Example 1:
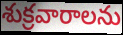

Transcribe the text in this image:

శుక్రవారాలను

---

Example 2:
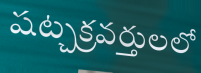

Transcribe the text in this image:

షట్చక్రవర్తులలో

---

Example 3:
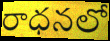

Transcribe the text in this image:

రాధనలో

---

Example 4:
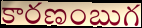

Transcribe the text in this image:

కారణంబుగ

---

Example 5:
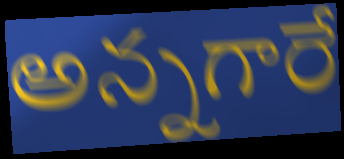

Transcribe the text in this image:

అన్నగారే